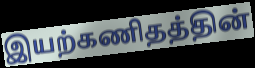
இயற்கணிதத்தின்